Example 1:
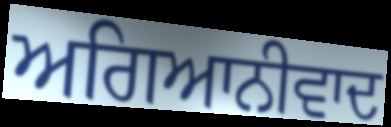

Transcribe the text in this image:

ਅਗਿਆਨੀਵਾਦ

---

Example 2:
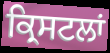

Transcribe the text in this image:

ਕ੍ਰਿਸਟਲਾਂ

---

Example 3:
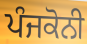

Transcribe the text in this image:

ਪੰਜਕੋਨੀ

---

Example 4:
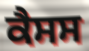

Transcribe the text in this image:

ਕੈਸਸ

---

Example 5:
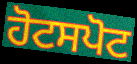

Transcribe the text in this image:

ਹੋਟਸਪੋਟ